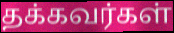
தக்கவர்கள்